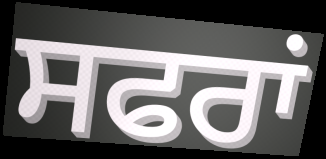
ਸਫਰਾਂ